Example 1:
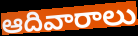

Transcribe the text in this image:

ఆదివారాలు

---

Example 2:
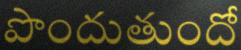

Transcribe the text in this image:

పొందుతుందో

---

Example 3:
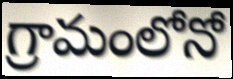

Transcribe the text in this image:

గ్రామంలోనో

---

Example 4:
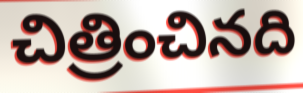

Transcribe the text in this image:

చిత్రించినది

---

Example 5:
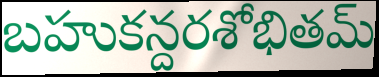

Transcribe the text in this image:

బహుకన్దరశోభితమ్